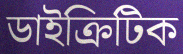
ডাইক্ৰিটিক